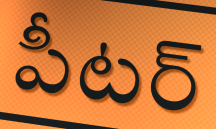
పీటర్